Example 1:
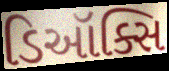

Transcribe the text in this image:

ડિઑક્સિ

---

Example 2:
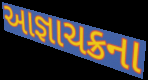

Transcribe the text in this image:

આજ્ઞાચક્રના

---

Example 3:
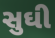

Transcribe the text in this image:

સુઘી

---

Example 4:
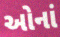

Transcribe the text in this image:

ઓનાં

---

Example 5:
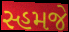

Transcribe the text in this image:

સ્હમજે